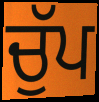
ਚੁੱਪ